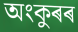
অংকুৰৰ